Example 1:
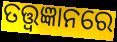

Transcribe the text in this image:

ତତ୍ତ୍ୱଜ୍ଞାନରେ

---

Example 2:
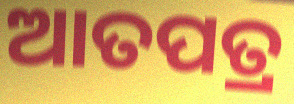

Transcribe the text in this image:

ଆତପତ୍ର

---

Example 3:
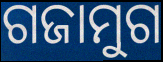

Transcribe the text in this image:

ଗଜାମୁଗ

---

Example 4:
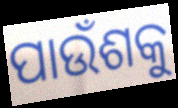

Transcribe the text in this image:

ପାଉଁଶକୁ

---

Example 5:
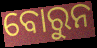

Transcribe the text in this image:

ବୋରୁନ